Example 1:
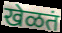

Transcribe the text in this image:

खेळतं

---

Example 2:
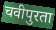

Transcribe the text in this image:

चवीपुरता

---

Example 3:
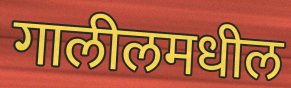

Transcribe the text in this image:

गालीलमधील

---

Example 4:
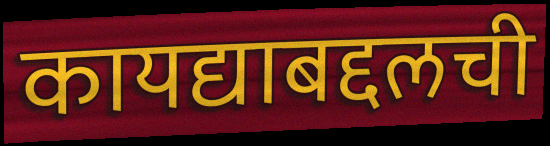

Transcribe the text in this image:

कायद्याबद्दलची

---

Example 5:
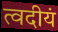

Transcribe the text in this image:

त्वदीयं